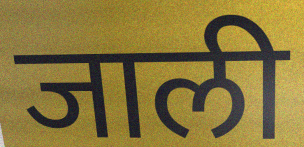
जाली